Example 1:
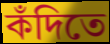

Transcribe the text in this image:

কঁদিতে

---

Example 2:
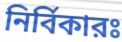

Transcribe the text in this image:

নির্বিকারঃ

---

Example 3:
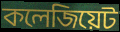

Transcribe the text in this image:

কলেজিয়েট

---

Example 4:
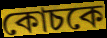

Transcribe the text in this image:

কোচকে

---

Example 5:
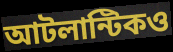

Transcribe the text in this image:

আটলান্টিকও